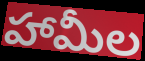
హామీల